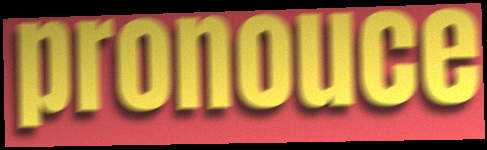
pronouce